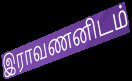
இராவணனிடம்